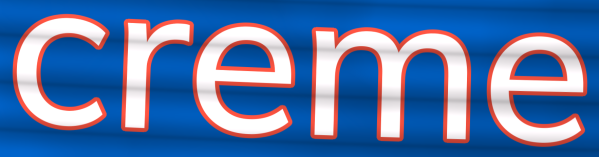
creme